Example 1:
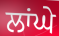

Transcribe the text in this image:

ਲਾਂਘੇ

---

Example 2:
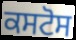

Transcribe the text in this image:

ਕਸਟੋਸ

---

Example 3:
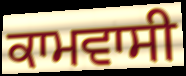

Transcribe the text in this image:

ਕਾਮਵਾਸੀ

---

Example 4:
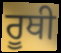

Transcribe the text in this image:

ਰੂਥੀ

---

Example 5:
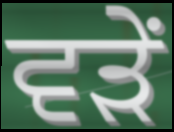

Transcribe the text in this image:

ਵੜੇਂ